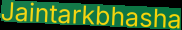
Jaintarkbhasha